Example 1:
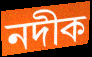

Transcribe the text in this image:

নদীক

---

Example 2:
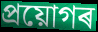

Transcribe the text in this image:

প্ৰয়োগৰ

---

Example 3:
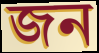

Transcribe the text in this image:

জন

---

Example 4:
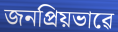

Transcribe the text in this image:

জনপ্ৰিয়ভাৱে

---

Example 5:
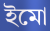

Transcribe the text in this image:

ইমো